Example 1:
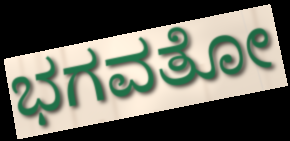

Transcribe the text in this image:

ಭಗವತೋ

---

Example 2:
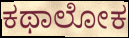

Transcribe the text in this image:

ಕಥಾಲೋಕ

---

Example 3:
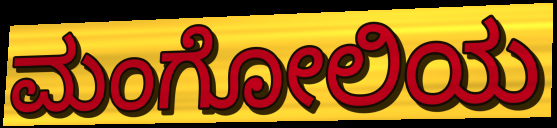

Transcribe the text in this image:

ಮಂಗೋಲಿಯ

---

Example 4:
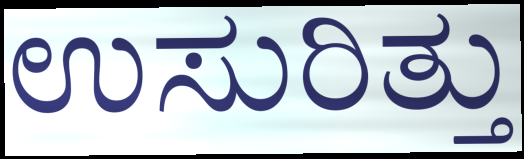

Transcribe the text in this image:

ಉಸುರಿತ್ತು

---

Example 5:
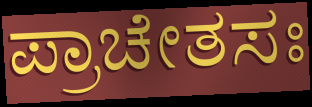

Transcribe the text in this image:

ಪ್ರಾಚೇತಸಃ